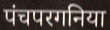
पंचपरगनिया